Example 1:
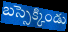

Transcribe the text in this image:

బస్సెక్కిండు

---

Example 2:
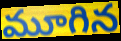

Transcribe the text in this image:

మూగిన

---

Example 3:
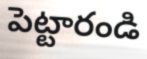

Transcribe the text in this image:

పెట్టారండి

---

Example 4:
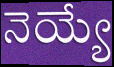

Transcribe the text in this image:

నెయ్యే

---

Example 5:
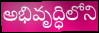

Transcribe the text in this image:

అభివృద్ధిలోని